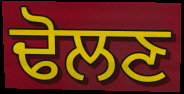
ਢੋਲਣ